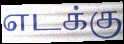
எடக்கு